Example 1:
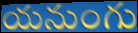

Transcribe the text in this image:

యనుంగు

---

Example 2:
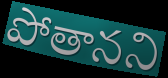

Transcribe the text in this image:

పోతానని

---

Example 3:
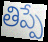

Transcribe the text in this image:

తిప్పే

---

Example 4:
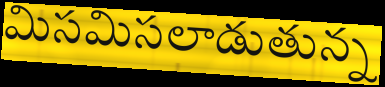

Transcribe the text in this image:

మిసమిసలాడుతున్న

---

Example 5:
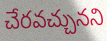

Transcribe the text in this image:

చేరవచ్చునని